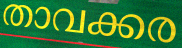
താവക്കര